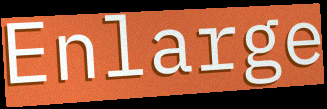
Enlarge